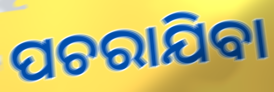
ପଚରାଯିବା